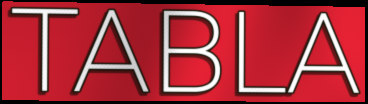
TABLA